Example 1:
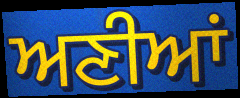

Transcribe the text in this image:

ਅਣੀਆਂ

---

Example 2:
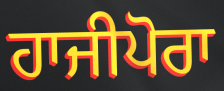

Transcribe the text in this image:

ਹਾਜੀਪੋਰਾ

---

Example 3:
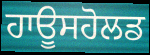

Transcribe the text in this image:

ਹਾਊਸਹੋਲਡ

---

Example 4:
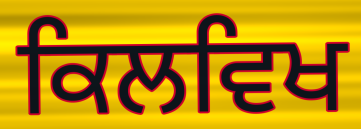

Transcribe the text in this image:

ਕਿਲਵਿਖ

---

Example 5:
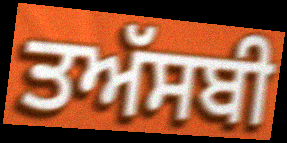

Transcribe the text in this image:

ਤਅੱਸਬੀ